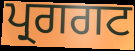
ਪ੍ਰਗਗਟ